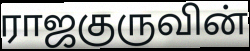
ராஜகுருவின்